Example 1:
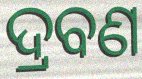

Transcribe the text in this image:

ଦ୍ରବଣ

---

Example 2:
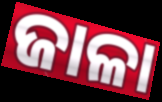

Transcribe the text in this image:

ଜାଳା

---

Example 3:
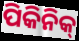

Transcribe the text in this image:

ପିକିନିକ୍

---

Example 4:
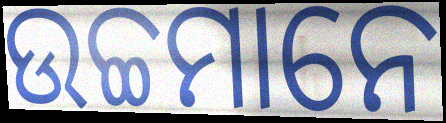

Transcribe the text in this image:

ଉଚ୍ଚମାନେ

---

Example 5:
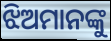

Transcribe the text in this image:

ଝିଅମାନଙ୍କୁ